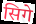
सिगे